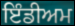
ਇੰਡੀਅਮ